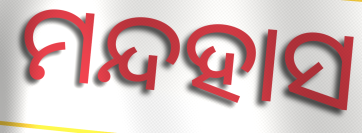
ମନ୍ଦହାସ